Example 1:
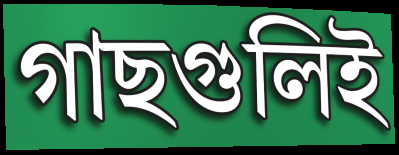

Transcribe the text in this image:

গাছগুলিই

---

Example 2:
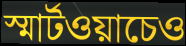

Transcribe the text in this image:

স্মার্টওয়াচেও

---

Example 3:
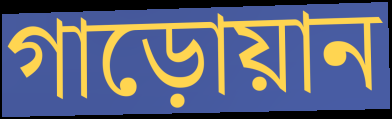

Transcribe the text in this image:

গাড়োয়ান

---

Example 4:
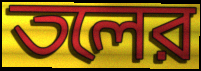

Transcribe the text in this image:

তলের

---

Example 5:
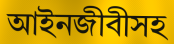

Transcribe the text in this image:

আইনজীবীসহ